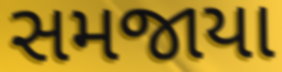
સમજાયા